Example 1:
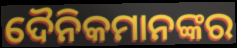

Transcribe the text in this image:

ଦୈନିକମାନଙ୍କର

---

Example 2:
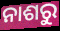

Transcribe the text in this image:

ନାଶରୁ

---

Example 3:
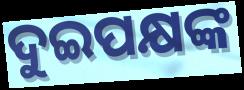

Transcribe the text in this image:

ଦୁଇପକ୍ଷଙ୍କ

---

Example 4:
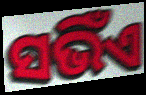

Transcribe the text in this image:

ସଭିଁଏ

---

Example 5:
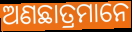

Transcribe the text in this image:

ଅଣଛାତ୍ରମାନେ